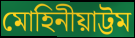
মোহিনীয়াট্টম